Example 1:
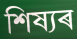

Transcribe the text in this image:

শিষ্যৰ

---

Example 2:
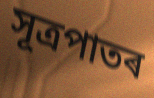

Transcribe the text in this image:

সূত্ৰপাতৰ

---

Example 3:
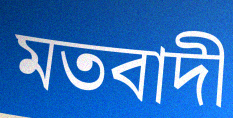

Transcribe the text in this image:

মতবাদী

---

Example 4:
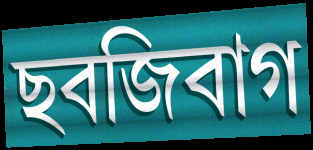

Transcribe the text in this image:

ছবজিবাগ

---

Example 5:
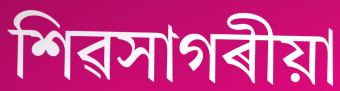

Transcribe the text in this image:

শিৱসাগৰীয়া